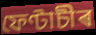
ফেণ্টাচীৰ